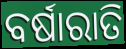
ବର୍ଷାରାତି